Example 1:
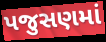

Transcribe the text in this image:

પજુસણમાં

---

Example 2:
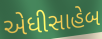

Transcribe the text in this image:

એધીસાહેબ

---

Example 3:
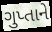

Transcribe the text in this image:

ગુપ્તાને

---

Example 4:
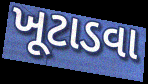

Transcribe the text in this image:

ખૂટાડવા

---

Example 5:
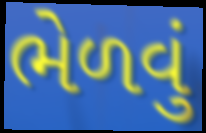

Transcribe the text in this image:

ભેળવું